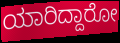
ಯಾರಿದ್ದಾರೋ